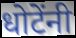
धोटेंनी